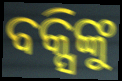
ବକ୍ସିଙ୍କୁ